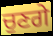
ਚੁਣਗੇ